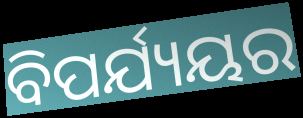
ବିପର୍ଯ୍ୟୟର